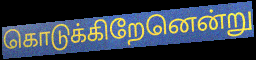
கொடுக்கிறேனென்று